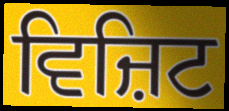
ਵਿਜ਼ਿਟ